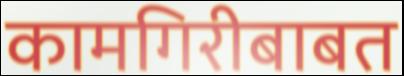
कामगिरीबाबत